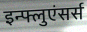
इन्फ्लुएंसर्स